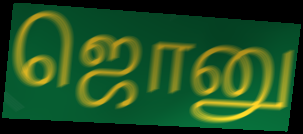
ஜொனு